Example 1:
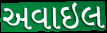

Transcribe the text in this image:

અવાઇલ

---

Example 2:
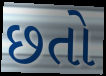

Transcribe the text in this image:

છતો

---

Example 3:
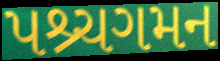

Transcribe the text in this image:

પશ્ર્ચગમન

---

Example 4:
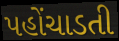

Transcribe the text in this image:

પહોંચાડતી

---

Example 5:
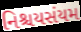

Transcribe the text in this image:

નિશ્ચયસંયમ